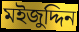
মইজুদ্দিন